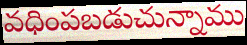
వధింపబడుచున్నాము